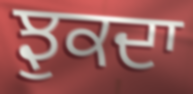
ਝੁਕਦਾ